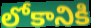
లోకానికి